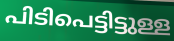
പിടിപെട്ടിട്ടുള്ള